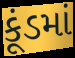
કૂંડમાં